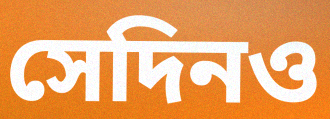
সেদিনও